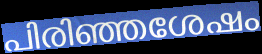
പിരിഞ്ഞശേഷം